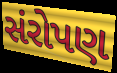
સંરોપણ